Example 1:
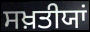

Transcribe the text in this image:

ਸਖ਼ਤੀਯਾਂ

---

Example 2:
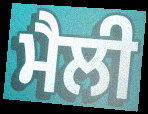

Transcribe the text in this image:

ਮੈਲੀ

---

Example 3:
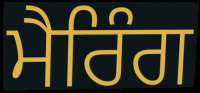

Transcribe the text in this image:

ਮੈਰਿੰਗ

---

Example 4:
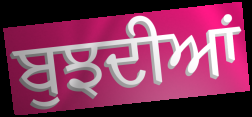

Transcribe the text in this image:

ਬੁਝਦੀਆਂ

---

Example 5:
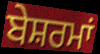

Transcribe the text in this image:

ਬੇਸ਼ਰਮਾਂ